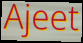
Ajeet